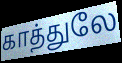
காத்துலே